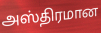
அஸ்திரமான